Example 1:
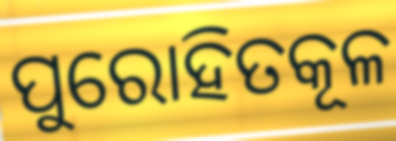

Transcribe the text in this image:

ପୁରୋହିତକୂଳ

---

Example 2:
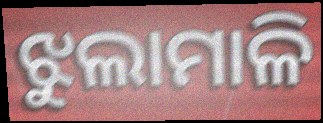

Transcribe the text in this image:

ଝୁଲାମାଳି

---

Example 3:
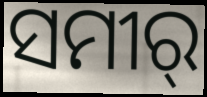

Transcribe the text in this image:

ସମୀର୍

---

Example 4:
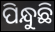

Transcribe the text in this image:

ପିନ୍ଧୁଛି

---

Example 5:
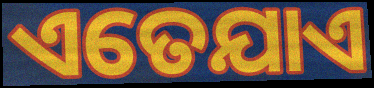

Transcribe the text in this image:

ଏତେଯାଏ